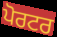
ਪੋਰਟਰ